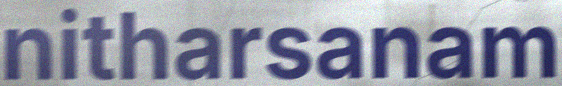
nitharsanam